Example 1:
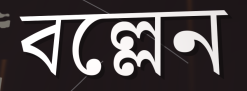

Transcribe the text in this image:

বল্লেন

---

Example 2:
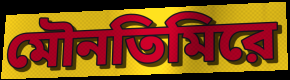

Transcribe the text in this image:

মৌনতিমিরে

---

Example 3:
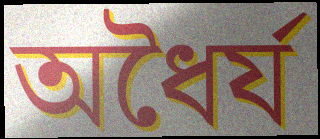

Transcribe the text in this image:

অধৈর্য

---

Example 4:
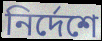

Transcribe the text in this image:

নির্দেশে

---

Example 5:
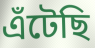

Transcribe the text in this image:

এঁটেছি